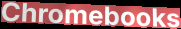
Chromebooks